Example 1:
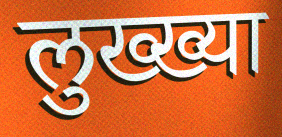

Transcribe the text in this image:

लुख्ख्या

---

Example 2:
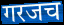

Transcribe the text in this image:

गरजच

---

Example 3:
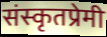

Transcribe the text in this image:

संस्कृतप्रेमी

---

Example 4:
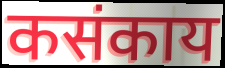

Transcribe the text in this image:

कसंकाय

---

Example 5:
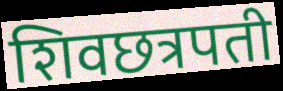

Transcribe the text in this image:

शिवछत्रपती